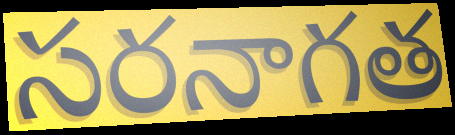
సరనాగత